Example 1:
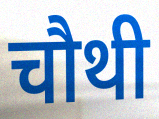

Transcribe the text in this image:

चौथी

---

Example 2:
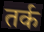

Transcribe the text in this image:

तर्क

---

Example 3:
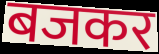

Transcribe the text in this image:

बजकर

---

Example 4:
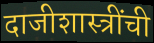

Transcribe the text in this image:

दाजीशास्त्रींची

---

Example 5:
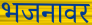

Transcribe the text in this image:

भजनावर